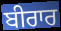
ਬੀਰਾਰ